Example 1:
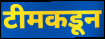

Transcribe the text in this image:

टीमकडून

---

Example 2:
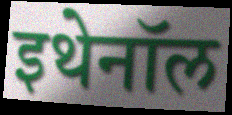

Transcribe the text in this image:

इथेनॉल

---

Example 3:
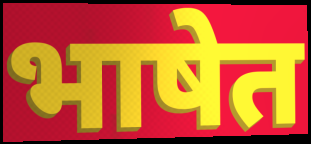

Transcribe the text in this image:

भाषेत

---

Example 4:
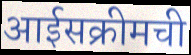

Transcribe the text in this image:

आईसक्रीमची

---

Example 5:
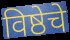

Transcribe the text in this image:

विष्ठेचे